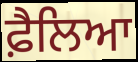
ਫ਼ੈਲਿਆ